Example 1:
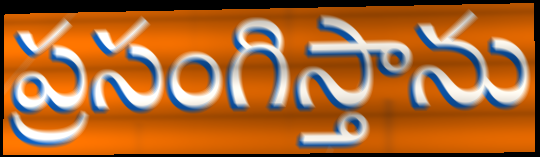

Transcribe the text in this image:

ప్రసంగిస్తాను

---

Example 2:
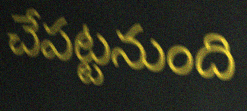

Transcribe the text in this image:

చేపట్టనుంది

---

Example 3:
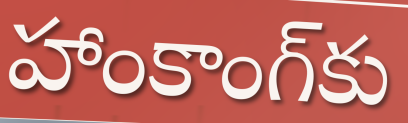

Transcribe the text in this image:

హాంకాంగ్‌కు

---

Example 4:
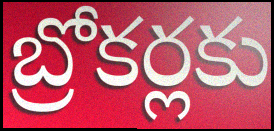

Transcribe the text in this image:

బ్రోకర్లకు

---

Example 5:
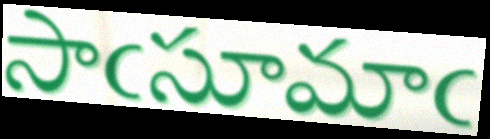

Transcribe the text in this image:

సాఁసూమాఁ